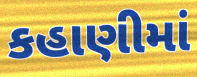
કહાણીમાં